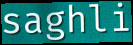
saghli